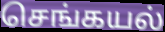
செங்கயல்